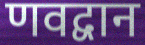
णवद्वान